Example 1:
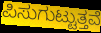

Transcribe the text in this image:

ಪಿಸುಗುಟ್ಟುತ್ತವೆ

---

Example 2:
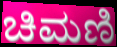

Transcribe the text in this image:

ಚಿಮಣಿ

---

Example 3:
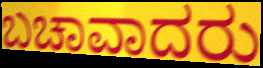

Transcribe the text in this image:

ಬಚಾವಾದರು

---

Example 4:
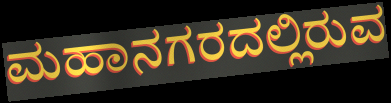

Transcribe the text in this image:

ಮಹಾನಗರದಲ್ಲಿರುವ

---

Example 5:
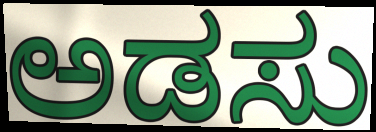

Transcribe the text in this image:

ಅಡಸು